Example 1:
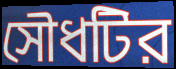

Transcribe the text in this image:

সৌধটির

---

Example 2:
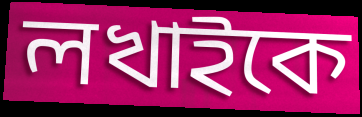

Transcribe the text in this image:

লখাইকে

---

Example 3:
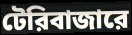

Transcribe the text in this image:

টেরিবাজারে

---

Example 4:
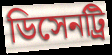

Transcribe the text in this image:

ডিসেনট্রি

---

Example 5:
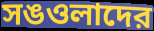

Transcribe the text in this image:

সঙওলাদের